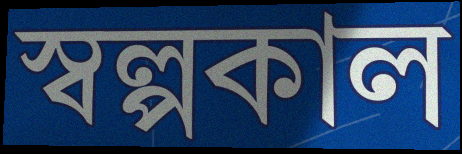
স্বল্পকাল